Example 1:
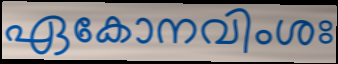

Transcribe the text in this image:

ഏകോനവിംശഃ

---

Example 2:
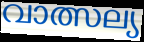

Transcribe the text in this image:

വാത്സല്യ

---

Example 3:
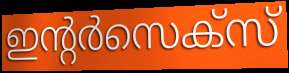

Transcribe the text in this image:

ഇന്റർസെക്സ്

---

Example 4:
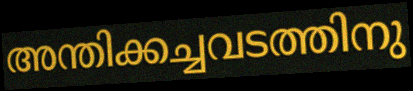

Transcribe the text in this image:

അന്തിക്കച്ചവടത്തിനു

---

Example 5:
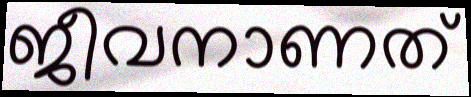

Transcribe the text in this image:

ജീവനാണത്